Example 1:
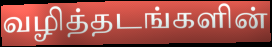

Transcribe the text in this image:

வழித்தடங்களின்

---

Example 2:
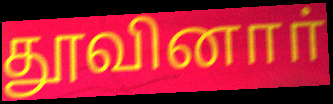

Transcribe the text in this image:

தூவினார்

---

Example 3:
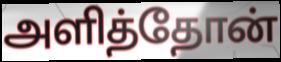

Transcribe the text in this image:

அளித்தோன்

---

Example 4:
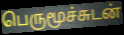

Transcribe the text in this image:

பெருமூச்சுடன்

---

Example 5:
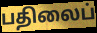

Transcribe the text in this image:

பதிலைப்